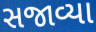
સજાવ્યા